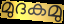
മുദകമു